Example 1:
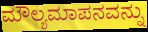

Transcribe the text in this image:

ಮೌಲ್ಯಮಾಪನವನ್ನು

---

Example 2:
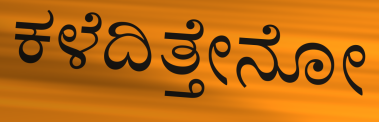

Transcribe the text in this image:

ಕಳೆದಿತ್ತೇನೋ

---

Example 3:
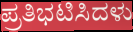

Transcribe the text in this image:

ಪ್ರತಿಭಟಿಸಿದಳು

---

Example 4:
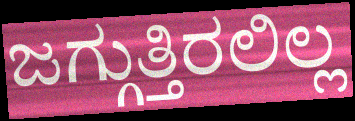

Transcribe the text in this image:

ಜಗ್ಗುತ್ತಿರಲಿಲ್ಲ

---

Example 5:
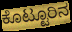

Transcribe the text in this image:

ಕೊಟ್ಟೂರಿನ